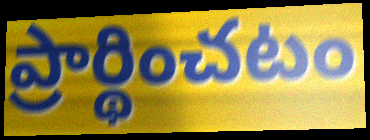
ప్రార్థించటం